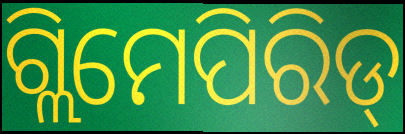
ଗ୍ଲିମେପିରିଡ୍